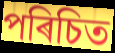
পৰিচিত